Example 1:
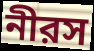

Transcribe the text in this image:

নীরস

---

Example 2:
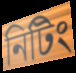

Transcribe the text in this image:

নিটিং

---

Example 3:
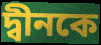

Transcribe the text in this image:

দ্বীনকে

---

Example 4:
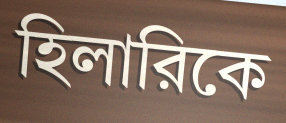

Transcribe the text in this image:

হিলারিকে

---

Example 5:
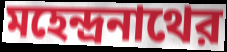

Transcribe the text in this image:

মহেন্দ্রনাথের